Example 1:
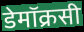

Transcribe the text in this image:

डेमॉक्रसी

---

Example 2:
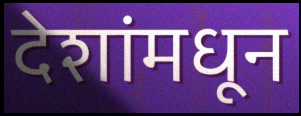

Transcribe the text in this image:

देशांमधून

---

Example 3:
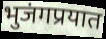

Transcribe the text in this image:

भुजंगप्रयात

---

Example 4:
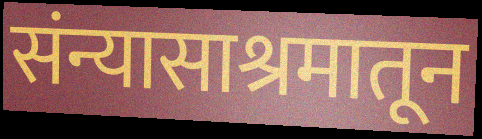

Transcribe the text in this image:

संन्यासाश्रमातून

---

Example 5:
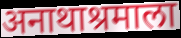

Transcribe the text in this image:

अनाथाश्रमाला